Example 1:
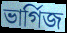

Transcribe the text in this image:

ভাৰ্গিজ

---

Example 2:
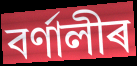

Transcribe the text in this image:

বৰ্ণালীৰ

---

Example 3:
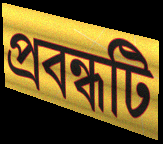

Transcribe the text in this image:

প্ৰবন্ধটি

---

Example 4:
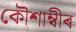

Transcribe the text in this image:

কৌশাম্বীৰ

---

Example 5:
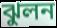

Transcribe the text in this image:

ঝুলন